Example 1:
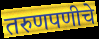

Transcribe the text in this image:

तरुणपणीचे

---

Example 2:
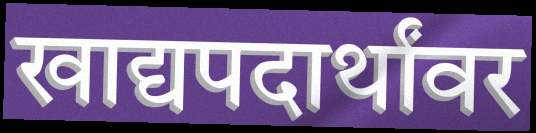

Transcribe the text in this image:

खाद्यपदार्थांवर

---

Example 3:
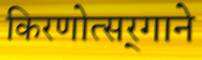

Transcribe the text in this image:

किरणोत्सर्गाने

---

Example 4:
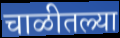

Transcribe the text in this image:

चाळीतल्या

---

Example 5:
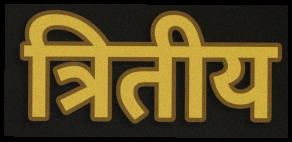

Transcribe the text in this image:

त्रितीय